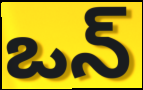
ఒన్